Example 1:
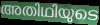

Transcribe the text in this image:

അതിഥിയുടെ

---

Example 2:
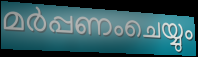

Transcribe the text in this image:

മർപ്പണംചെയ്യും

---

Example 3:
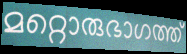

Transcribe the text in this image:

മറ്റൊരുഭാഗത്ത്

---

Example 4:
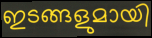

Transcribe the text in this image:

ഇടങ്ങളുമായി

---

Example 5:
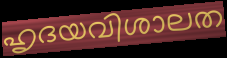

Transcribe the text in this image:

ഹൃദയവിശാലത